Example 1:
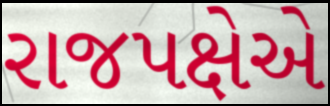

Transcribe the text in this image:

રાજપક્ષેએ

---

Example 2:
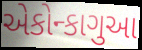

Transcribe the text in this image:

એકોન્કાગુઆ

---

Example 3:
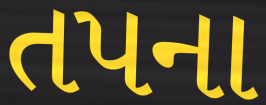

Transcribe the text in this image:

તપના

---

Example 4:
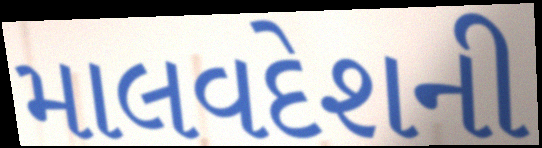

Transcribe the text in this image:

માલવદેશની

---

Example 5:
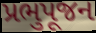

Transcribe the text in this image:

પ્રભુપૂજન